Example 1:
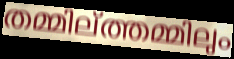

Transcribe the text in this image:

തമ്മില്ത്തമ്മിലും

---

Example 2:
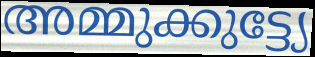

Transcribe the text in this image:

അമ്മുക്കുട്ട്യേ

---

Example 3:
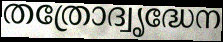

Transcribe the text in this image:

തത്രോദ്വൃദ്ധേന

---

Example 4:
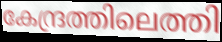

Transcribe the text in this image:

കേന്ദ്രത്തിലെത്തി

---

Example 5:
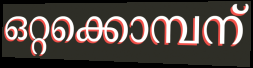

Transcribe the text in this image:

ഒറ്റക്കൊമ്പന്